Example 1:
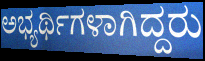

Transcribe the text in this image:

ಅಭ್ಯರ್ಥಿಗಳಾಗಿದ್ದರು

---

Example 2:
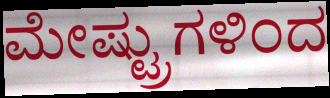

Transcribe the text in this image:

ಮೇಷ್ಟ್ರುಗಳಿಂದ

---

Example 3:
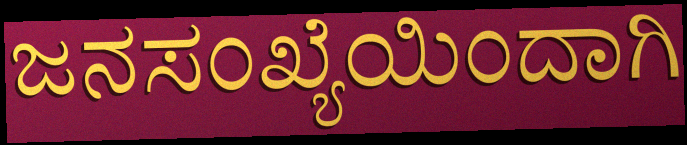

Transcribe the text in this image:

ಜನಸಂಖ್ಯೆಯಿಂದಾಗಿ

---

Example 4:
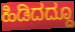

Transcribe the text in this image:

ಹಿಡಿದದ್ದೂ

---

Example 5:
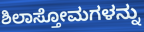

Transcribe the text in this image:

ಶಿಲಾಸ್ತೋಮಗಳನ್ನು